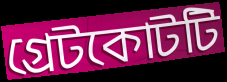
গ্রেটকোটটি